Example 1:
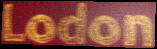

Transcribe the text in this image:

Lodon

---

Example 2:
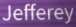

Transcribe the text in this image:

Jefferey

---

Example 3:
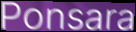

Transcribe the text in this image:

Ponsara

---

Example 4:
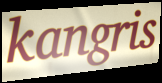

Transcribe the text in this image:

kangris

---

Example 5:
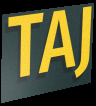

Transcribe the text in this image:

TAJ